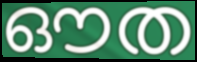
ഔത